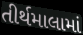
તીર્થમાલામાં